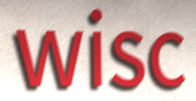
wisc